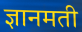
ज्ञानमती